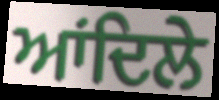
ਆਂਦਿਲੇ